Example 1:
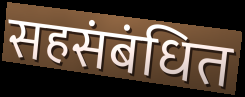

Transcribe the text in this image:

सहसंबंधित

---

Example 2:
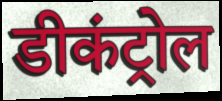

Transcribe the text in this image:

डीकंट्रोल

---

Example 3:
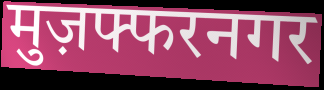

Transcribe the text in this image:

मुज़फ्फरनगर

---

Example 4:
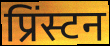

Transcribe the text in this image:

प्रिंस्टन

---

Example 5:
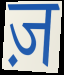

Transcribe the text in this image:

ज़